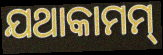
ଯଥାକାମମ୍